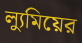
ল্যুমিয়ের